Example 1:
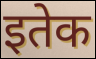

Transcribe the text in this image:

इतेक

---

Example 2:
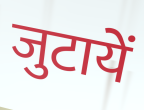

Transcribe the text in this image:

जुटायें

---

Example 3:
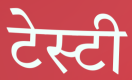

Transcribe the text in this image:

टेस्‍टी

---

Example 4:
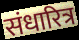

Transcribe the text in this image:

संधारित्र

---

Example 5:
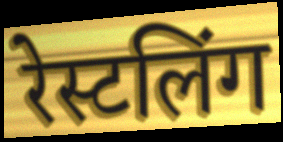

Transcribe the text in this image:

रेस्टलिंग